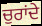
ਚੁਰਾਂਦੇ